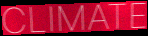
CLIMATE